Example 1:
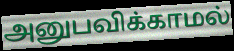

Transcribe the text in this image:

அனுபவிக்காமல்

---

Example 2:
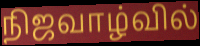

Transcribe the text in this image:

நிஜவாழ்வில்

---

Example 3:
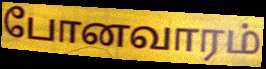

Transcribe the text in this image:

போனவாரம்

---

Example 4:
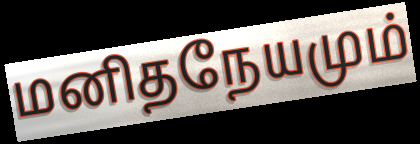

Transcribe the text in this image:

மனிதநேயமும்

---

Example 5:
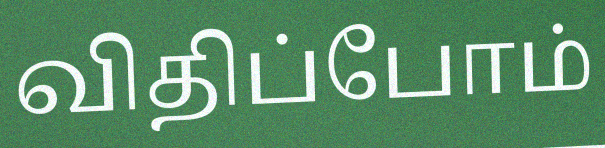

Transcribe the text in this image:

விதிப்போம்